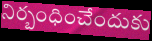
నిర్బంధించేందుకు